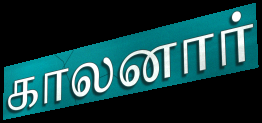
காலனார்